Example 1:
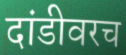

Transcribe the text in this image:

दांडीवरच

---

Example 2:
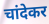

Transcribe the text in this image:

चांदेकर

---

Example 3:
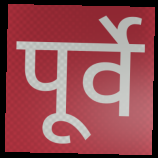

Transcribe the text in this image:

पूर्वे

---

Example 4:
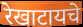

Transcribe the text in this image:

रेखाटायचे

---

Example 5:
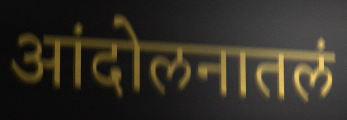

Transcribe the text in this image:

आंदोलनातलं